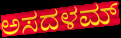
ಅಸದಳಮ್